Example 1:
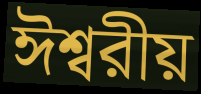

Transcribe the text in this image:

ঈশ্বরীয়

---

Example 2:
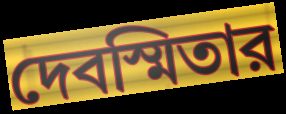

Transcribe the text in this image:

দেবস্মিতার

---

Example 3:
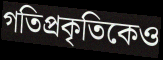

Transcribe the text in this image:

গতিপ্রকৃতিকেও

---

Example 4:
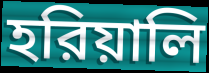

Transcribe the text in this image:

হরিয়ালি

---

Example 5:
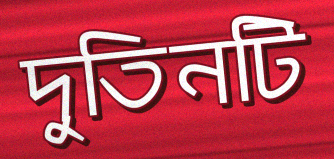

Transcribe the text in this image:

দুতিনটি